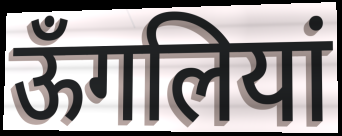
ऊँगलियां